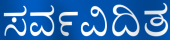
ಸರ್ವವಿದಿತ